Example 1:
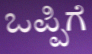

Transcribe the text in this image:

ಒಪ್ಪಿಗೆ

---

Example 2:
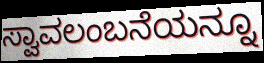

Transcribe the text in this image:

ಸ್ವಾವಲಂಬನೆಯನ್ನೂ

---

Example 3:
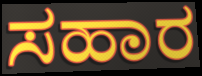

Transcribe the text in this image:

ಸಹಾರ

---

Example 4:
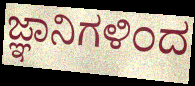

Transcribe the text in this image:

ಜ್ಞಾನಿಗಳಿಂದ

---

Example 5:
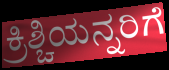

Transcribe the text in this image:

ಕ್ರಿಶ್ಚಿಯನ್ನರಿಗೆ